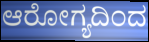
ಆರೋಗ್ಯದಿಂದ